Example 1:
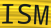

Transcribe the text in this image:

ISM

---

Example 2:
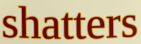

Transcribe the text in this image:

shatters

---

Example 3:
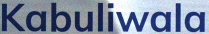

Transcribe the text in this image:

Kabuliwala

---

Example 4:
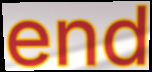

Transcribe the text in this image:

end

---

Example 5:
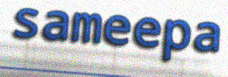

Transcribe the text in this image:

sameepa